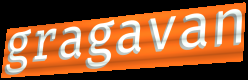
gragavan